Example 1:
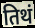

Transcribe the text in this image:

तिथं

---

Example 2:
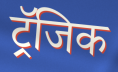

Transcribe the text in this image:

ट्रॅजिक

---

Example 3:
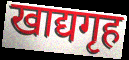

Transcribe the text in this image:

खाद्यगृह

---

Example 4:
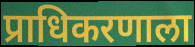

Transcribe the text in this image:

प्राधिकरणाला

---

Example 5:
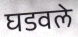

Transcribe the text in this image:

घडवले